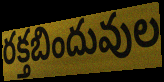
రక్తబిందువుల